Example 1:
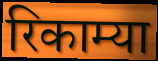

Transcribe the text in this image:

रिकाम्या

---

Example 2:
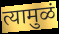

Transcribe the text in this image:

त्यामुळं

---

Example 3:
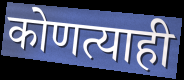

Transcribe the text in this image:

कोणत्याही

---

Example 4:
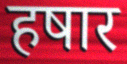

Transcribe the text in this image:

हषार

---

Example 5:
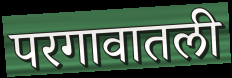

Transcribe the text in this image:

परगावातली